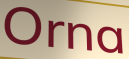
Orna